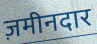
ज़मीनदार